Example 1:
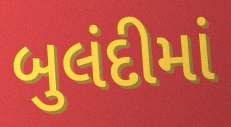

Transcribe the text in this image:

બુલંદીમાં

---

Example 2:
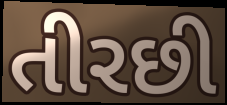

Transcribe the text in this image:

તીરછી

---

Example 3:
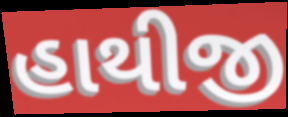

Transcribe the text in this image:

હાથીજી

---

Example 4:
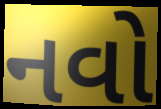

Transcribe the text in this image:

નવો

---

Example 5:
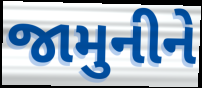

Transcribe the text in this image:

જામુનીને